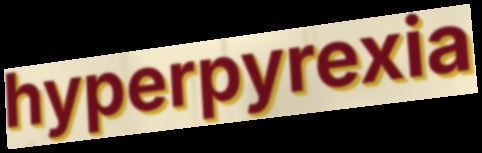
hyperpyrexia